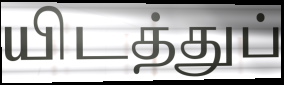
யிடத்துப்